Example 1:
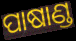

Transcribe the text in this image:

ପାଷାଣ୍ଡ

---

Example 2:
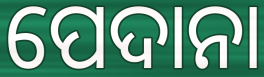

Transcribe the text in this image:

ପେଦାନା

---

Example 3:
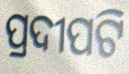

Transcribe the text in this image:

ପ୍ରଦୀପଟି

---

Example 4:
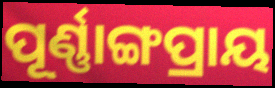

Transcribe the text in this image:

ପୂର୍ଣ୍ଣାଙ୍ଗପ୍ରାୟ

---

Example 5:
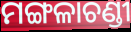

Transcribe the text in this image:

ମଙ୍ଗଳାଚଣ୍ଡୀ